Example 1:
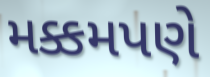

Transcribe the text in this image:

મક્કમપણે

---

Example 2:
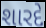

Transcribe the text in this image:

શારદે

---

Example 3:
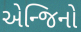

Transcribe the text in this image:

એન્જિનો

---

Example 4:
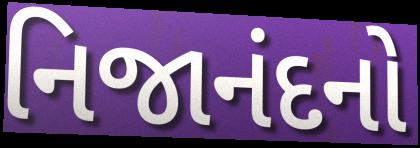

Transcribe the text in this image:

નિજાનંદનો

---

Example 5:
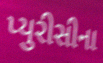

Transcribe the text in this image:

પ્યુરીસીના